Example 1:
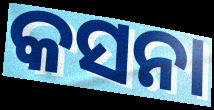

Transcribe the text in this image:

କସନା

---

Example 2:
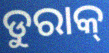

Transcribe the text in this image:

ଡୁରାକ୍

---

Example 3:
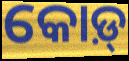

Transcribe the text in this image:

କୋଡ଼୍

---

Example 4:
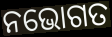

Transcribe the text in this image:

ନଭୋଗତ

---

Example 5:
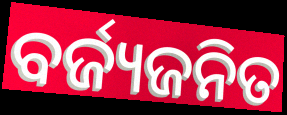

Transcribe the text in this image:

ବର୍ଜ୍ୟଜନିତ